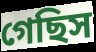
গেছিস